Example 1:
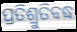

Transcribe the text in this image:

ପ୍ରତିଶ୍ରୁତିବଦ୍ଧ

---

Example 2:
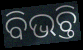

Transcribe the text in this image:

ବିଭଚ୍ତି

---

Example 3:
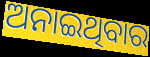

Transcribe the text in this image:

ଅନାଇଥିବାର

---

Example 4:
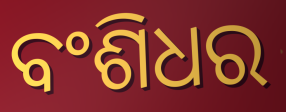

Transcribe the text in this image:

ବଂଶିଧର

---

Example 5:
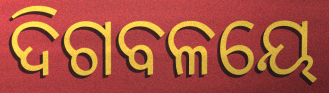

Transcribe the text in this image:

ଦିଗବଳୟେ